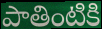
పాతింటికి